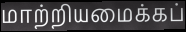
மாற்றியமைக்கப்